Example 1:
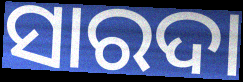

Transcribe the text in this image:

ସାରଦା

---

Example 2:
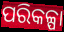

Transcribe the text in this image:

ପରିକଳ୍ପା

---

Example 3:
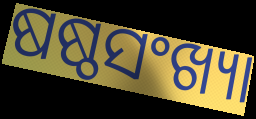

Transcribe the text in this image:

ଷଷ୍ଠସଂଖ୍ୟା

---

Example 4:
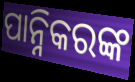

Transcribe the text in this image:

ପାନ୍ନିକରଙ୍କ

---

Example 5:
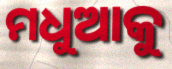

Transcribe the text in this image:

ମଧୁଆକୁ